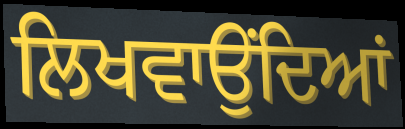
ਲਿਖਵਾਉਂਦਿਆਂ